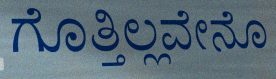
ಗೊತ್ತಿಲ್ಲವೇನೊ